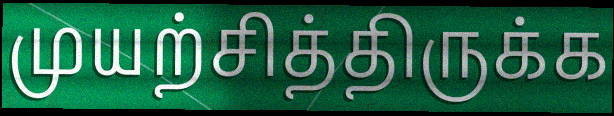
முயற்சித்திருக்க